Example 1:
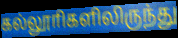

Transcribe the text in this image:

கல்லூரிகளிலிருந்து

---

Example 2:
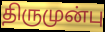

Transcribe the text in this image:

திருமுன்பு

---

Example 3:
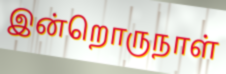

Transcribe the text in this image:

இன்றொருநாள்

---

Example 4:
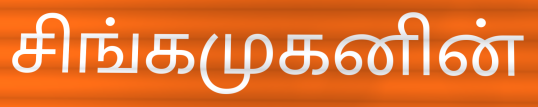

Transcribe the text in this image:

சிங்கமுகனின்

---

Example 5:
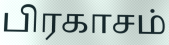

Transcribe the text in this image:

பிரகாசம்